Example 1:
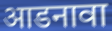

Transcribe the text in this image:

आडनावा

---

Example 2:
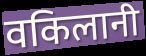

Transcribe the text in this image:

वकिलानी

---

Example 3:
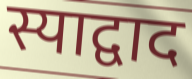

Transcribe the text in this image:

स्याद्वाद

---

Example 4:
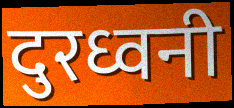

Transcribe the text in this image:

दुरध्वनी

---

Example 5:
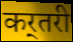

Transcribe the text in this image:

कर्तरी